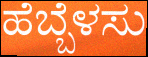
ಹೆಬ್ಬೆಳಸು